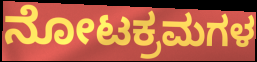
ನೋಟಕ್ರಮಗಳ